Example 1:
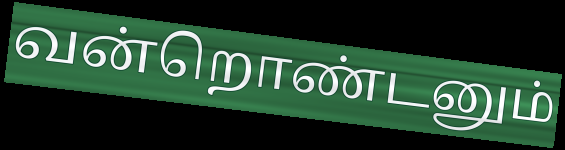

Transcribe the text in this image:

வன்றொண்டனும்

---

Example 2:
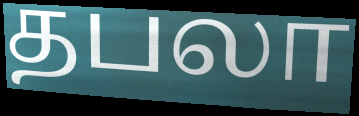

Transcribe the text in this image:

தபலா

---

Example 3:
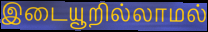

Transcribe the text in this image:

இடையூறில்லாமல்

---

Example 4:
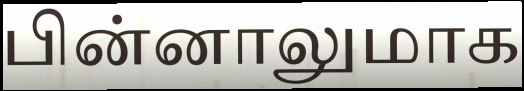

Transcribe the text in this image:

பின்னாலுமாக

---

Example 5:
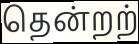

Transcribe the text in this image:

தென்றற்